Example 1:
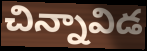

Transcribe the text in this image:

చిన్నావిడ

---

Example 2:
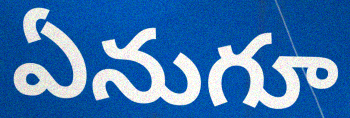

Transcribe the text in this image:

ఏనుగూ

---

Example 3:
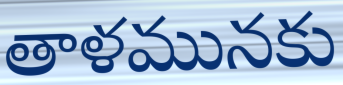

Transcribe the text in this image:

తాళమునకు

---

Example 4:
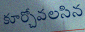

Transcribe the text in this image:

కూర్చోవలసిన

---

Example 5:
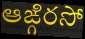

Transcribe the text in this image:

ఆఙ్గిరసో